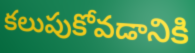
కలుపుకోవడానికి